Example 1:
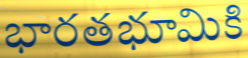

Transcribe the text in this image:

భారతభూమికి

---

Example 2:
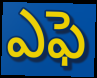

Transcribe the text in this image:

ఎఫె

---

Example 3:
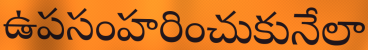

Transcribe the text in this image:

ఉపసంహరించుకునేలా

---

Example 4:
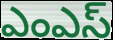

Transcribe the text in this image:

ఎంఎస్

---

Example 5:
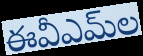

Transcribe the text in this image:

ఈవీఎమ్‌ల